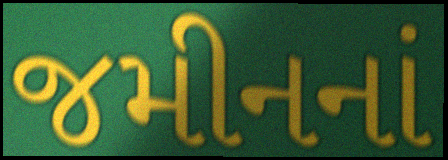
જમીનનાં